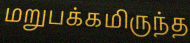
மறுபக்கமிருந்த